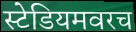
स्टेडियमवरच